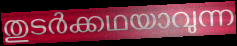
തുടർക്കഥയാവുന്ന